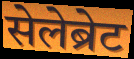
सेलेब्रेट